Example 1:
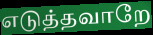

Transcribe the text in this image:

எடுத்தவாறே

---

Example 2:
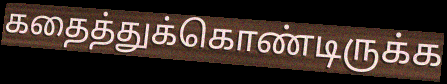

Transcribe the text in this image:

கதைத்துக்கொண்டிருக்க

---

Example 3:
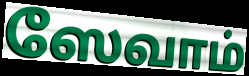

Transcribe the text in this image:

ஸேவாம்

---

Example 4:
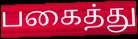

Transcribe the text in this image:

பகைத்து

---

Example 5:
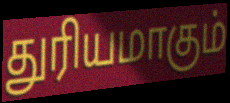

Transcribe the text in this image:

துரியமாகும்